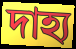
দাহ্য